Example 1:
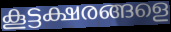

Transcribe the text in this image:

കൂട്ടക്ഷരങ്ങളെ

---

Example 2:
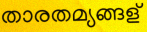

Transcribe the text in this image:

താരതമ്യങ്ങള്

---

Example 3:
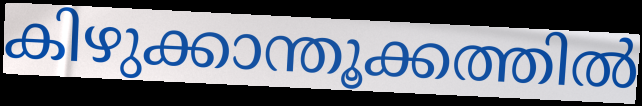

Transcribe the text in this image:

കിഴുക്കാന്തൂക്കത്തിൽ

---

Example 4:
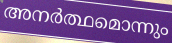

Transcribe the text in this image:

അനർത്ഥമൊന്നും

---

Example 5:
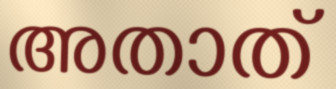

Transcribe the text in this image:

അതാത്